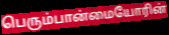
பெரும்பான்மையோரின்